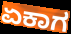
ಏಕಾಗ